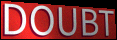
DOUBT